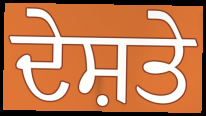
ਦੇਸ਼ਤੇ